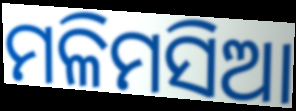
ମଳିମସିଆ